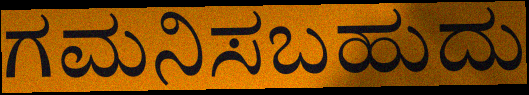
ಗಮನಿಸಬಹುದು